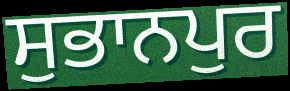
ਸੁਭਾਨਪੁਰ